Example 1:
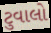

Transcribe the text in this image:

ટુવાલો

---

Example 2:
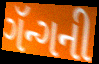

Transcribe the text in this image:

ગૅન્ગની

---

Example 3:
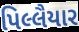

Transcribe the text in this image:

પિલ્લૈયાર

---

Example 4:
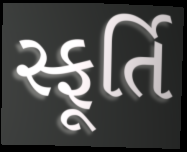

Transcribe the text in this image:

સ્ફૂર્તિ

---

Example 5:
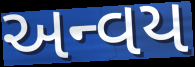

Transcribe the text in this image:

અન્વય